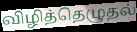
விழித்தெழுதல்